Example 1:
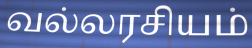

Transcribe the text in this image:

வல்லரசியம்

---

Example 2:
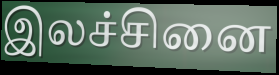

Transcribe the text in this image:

இலச்சினை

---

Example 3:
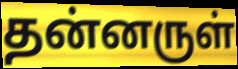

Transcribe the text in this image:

தன்னருள்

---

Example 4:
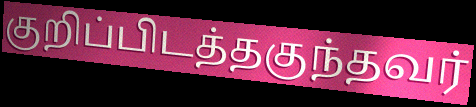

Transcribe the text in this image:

குறிப்பிடத்தகுந்தவர்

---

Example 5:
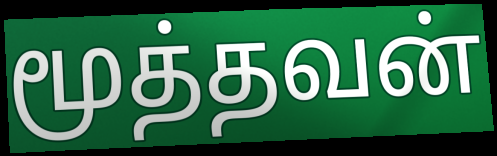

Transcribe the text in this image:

மூத்தவன்